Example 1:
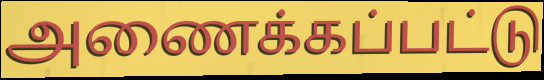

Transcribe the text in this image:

அணைக்கப்பட்டு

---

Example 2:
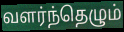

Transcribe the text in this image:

வளர்ந்தெழும்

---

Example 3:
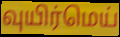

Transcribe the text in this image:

வுயிர்மெய்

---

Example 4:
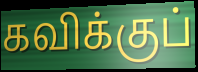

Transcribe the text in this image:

கவிக்குப்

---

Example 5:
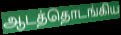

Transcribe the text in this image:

ஆடத்தொடங்கிய